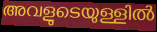
അവളുടെയുള്ളിൽ